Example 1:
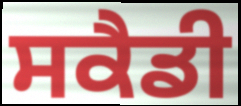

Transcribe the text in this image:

ਸਕੈਡੀ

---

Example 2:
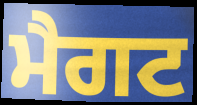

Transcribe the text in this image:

ਮੈਗਟ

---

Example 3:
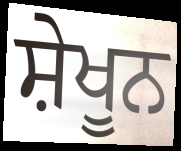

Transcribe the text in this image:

ਸ਼ੇਖੂਨ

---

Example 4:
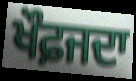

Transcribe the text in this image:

ਖੌਫ਼ਜਦਾ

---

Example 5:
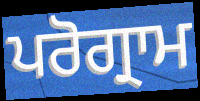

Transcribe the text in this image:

ਪਰੋਗ੍ਰਾਮ